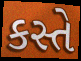
કસ્તે